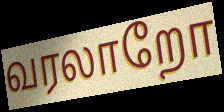
வரலாறோ